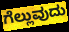
ಗೆಲ್ಲುವುದು